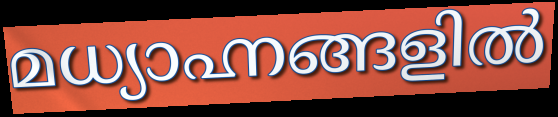
മധ്യാഹ്നങ്ങളിൽ